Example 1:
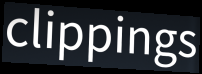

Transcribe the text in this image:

clippings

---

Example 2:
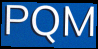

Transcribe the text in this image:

PQM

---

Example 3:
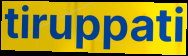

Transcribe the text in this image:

tiruppati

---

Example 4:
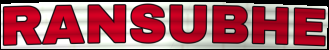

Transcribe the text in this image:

RANSUBHE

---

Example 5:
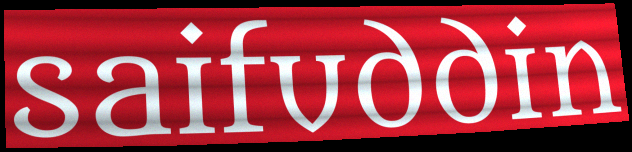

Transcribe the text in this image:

saifuddin